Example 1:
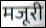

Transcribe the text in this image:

मजूरी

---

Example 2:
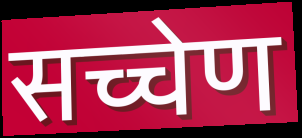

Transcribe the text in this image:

सच्चेण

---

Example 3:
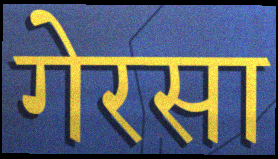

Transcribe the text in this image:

गेरसा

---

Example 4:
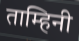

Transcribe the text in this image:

ताम्हिनी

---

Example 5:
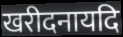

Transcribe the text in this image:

खरीदनायदि